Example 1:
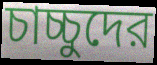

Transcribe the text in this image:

চাচ্চুদের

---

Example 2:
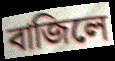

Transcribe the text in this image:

বাজিলে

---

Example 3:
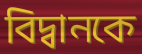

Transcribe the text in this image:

বিদ্বানকে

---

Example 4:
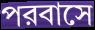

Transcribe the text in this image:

পরবাসে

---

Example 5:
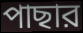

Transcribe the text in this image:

পাছার